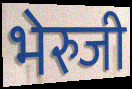
भेरुजी